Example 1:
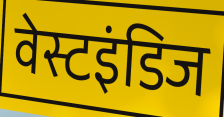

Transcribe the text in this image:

वेस्टइंडिज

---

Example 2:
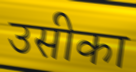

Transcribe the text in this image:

उसीका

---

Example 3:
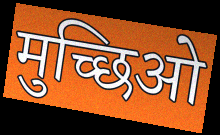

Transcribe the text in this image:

मुच्छिओ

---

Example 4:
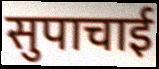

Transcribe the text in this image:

सुपाचाई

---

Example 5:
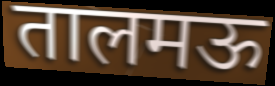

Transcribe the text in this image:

तालमऊ